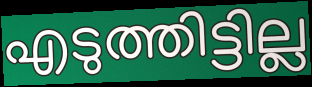
എടുത്തിട്ടില്ല